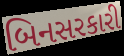
બિનસરકારી